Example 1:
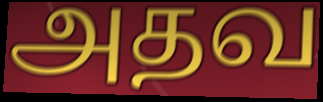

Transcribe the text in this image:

அதவ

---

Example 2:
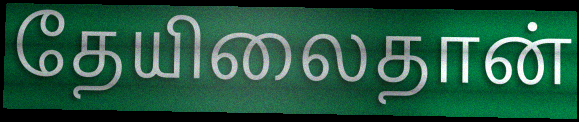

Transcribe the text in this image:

தேயிலைதான்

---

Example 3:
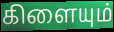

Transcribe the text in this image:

கிளையும்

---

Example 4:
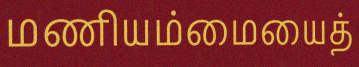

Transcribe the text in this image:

மணியம்மையைத்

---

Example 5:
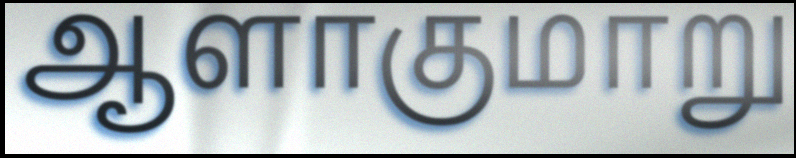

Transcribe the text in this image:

ஆளாகுமாறு